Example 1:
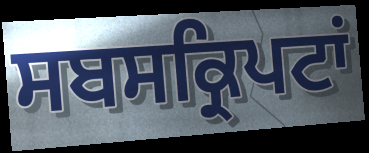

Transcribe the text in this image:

ਸਬਸਕ੍ਰਿਪਟਾਂ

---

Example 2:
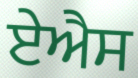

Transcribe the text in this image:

ਏਐਸ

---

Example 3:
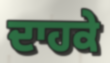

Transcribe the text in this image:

ਦਾਹਕੇ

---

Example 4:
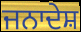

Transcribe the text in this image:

ਜਨਾਦੇਸ਼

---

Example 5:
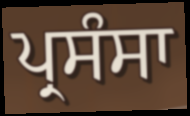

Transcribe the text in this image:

ਪ੍ਰਸੰਸਾ